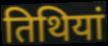
तिथियां